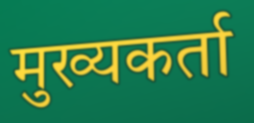
मुख्यकर्ता